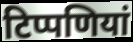
टिप्पणियां